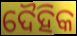
ଦୈହିକ